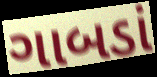
ગાબડાં